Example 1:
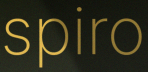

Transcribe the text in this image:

spiro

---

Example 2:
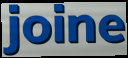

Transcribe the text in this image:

joine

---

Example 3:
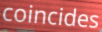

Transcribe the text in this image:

coincides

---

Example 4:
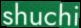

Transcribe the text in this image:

shuchi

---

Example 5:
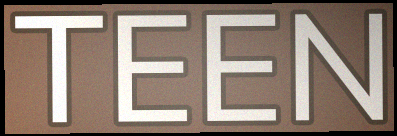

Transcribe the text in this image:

TEEN